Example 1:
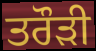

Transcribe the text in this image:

ਤਰੌੜੀ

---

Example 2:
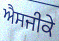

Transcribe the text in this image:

ਐਸਜੀਕੇ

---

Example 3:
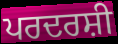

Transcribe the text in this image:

ਪਰਦਰਸ਼ੀ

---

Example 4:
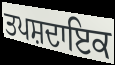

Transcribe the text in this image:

ਤਪਸ਼ਦਾਇਕ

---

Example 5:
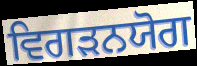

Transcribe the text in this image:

ਵਿਗੜਨਯੋਗ